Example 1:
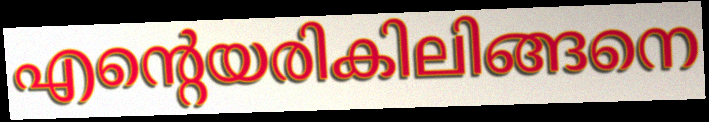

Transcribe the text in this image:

എന്റെയരികിലിങ്ങനെ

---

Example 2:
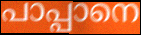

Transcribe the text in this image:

പാപ്പാനെ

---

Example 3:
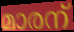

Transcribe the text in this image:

മാരന്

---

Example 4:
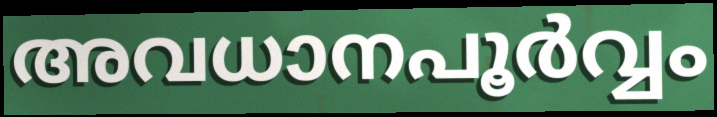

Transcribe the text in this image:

അവധാനപൂർവ്വം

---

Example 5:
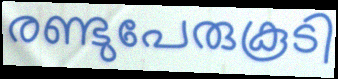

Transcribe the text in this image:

രണ്ടുപേരുകൂടി